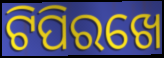
ଟିପିରଖେ